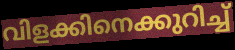
വിളക്കിനെക്കുറിച്ച്